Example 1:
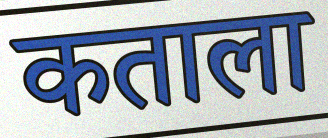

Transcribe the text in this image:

कताला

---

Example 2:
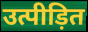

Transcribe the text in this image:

उत्पीड़ित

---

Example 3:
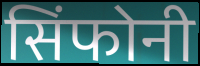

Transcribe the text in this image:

सिंफोनी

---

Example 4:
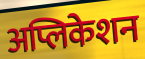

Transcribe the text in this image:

अप्लिकेशन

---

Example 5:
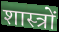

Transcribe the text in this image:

शास्त्रों